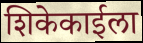
शिकेकाईला